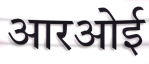
आरओई